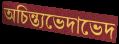
অচিন্ত্যভেদাভেদ